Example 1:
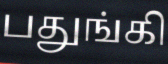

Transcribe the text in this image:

பதுங்கி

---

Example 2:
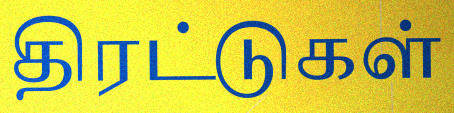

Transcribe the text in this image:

திரட்டுகள்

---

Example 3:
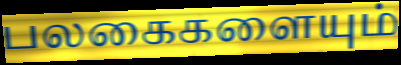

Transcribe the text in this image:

பலகைகளையும்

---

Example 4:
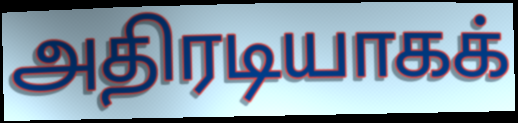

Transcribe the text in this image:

அதிரடியாகக்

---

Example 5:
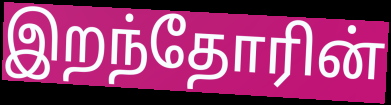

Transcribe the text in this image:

இறந்தோரின்